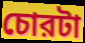
চোরটা